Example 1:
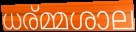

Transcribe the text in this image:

ധര്മ്മശാല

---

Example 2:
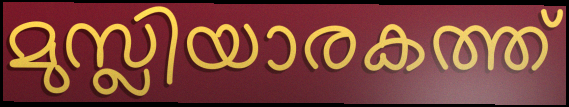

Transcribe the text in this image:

മുസ്ലിയാരകത്ത്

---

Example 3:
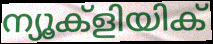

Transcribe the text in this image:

ന്യൂക്ളിയിക്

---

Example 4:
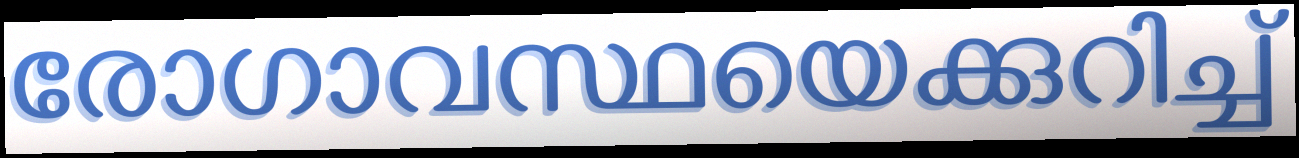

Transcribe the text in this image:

രോഗാവസ്ഥയെക്കുറിച്ച്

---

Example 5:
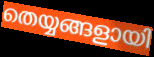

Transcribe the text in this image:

തെയ്യങ്ങളായി